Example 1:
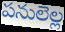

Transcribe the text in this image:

పనులెల్ల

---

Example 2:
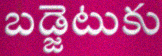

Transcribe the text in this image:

బడ్జెటుకు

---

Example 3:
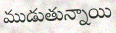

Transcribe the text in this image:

ముడుతున్నాయి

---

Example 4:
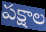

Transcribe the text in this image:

పక్షాల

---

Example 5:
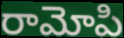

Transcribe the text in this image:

రామోపి